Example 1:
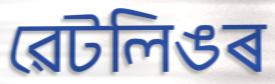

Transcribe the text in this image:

ৱেটলিঙৰ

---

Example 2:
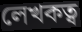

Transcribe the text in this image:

লেখকত্ব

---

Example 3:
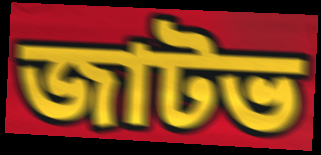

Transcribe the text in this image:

জাটভ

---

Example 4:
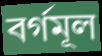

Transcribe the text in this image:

বৰ্গমূল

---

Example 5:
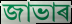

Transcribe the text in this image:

জাভাৰ